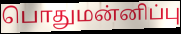
பொதுமன்னிப்பு